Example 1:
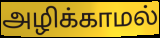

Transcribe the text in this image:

அழிக்காமல்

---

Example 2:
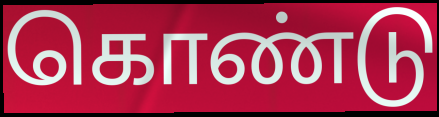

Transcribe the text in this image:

கொண்டு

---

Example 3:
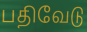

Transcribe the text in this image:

பதிவேடு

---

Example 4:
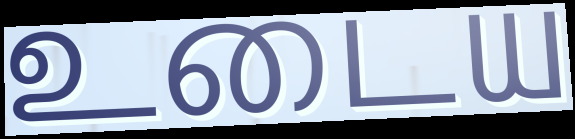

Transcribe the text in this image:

உடைய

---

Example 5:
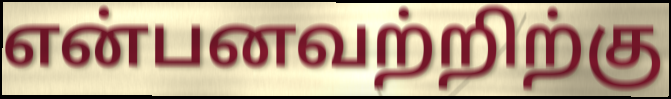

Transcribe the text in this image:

என்பனவற்றிற்கு